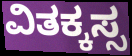
ವಿತಕ್ಕಸ್ಸ